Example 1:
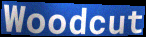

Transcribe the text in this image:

Woodcut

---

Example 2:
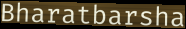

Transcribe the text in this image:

Bharatbarsha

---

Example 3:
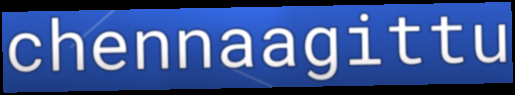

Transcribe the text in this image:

chennaagittu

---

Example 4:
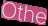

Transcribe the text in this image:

Othe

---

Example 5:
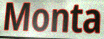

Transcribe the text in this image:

Monta